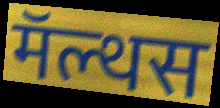
मॅल्थस